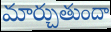
మార్చుతుందా